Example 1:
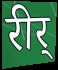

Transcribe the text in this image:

रीर्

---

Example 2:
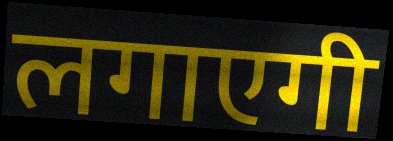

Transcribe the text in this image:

लगाएगी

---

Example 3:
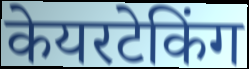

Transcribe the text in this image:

केयरटेकिंग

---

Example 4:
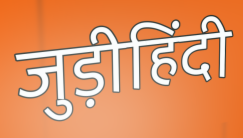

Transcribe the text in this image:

जुड़ीहिंदी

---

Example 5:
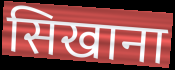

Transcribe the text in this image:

सिखाना